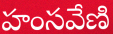
హంసవేణి